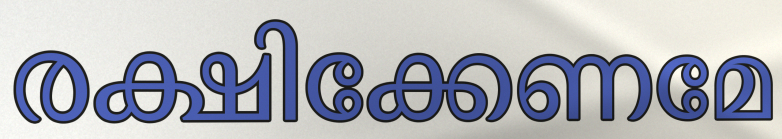
രക്ഷിക്കേണമേ